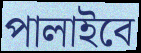
পালাইবে